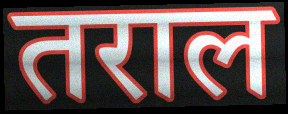
तराल